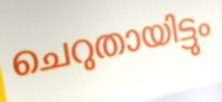
ചെറുതായിട്ടും